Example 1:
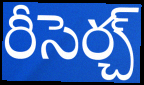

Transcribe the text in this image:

రీసెర్చ్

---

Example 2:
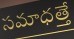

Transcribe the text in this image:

సమాధత్తే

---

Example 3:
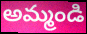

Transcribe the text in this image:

అమ్మండి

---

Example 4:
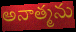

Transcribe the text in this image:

అనాత్మను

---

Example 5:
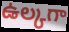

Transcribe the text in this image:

ఉల్కగా